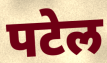
पटेल